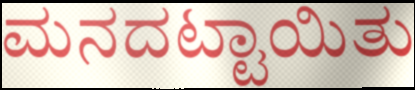
ಮನದಟ್ಟಾಯಿತು